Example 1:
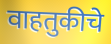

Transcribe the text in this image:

वाहतुकीचे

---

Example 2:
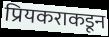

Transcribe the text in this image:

प्रियकराकडून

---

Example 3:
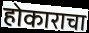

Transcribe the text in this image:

होकाराचा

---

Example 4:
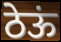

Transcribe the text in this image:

ठेऊं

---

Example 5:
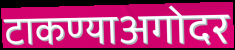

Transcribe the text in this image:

टाकण्याअगोदर